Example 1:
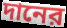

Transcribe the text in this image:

দানের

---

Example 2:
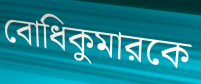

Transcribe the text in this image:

বোধিকুমারকে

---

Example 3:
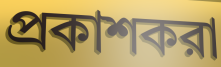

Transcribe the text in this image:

প্রকাশকরা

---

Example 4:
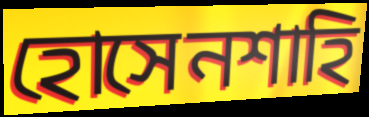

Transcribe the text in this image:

হোসেনশাহি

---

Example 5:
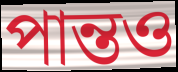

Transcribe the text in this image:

পান্তও